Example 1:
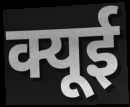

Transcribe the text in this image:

क्यूई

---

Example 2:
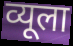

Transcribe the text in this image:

व्यूला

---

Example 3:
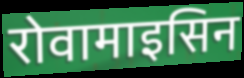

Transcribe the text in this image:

रोवामाइसिन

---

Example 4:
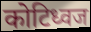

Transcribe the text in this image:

कोटिध्वज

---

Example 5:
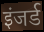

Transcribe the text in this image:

इंजर्ड